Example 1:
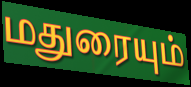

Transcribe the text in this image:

மதுரையும்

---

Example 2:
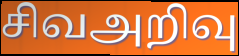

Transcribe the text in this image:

சிவஅறிவு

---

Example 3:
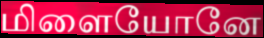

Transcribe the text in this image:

மிளையோனே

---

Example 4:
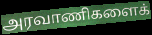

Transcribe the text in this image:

அரவாணிகளைக்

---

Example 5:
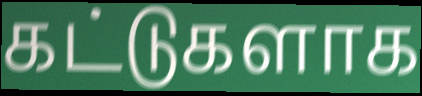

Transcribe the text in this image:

கட்டுகளாக